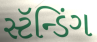
સ્ટૅન્ડિંગ